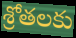
శ్రోతలకు